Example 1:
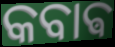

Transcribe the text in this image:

କବାଵ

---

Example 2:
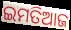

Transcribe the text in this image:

ଇମତିଆଜ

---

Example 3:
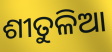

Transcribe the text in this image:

ଶୀତୁଳିଆ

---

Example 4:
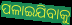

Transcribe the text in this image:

ପଳାଇଯିବାକୁ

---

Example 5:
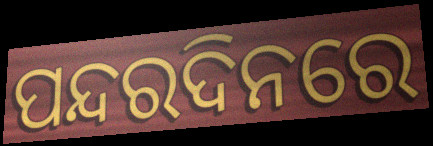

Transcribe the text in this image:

ପନ୍ଦରଦିନରେ